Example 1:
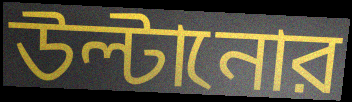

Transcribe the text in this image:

উল্টানোর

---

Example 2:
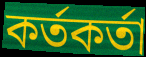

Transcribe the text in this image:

কর্তকর্তা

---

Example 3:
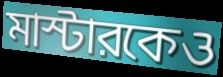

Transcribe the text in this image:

মাস্টারকেও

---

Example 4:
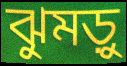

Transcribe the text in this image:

ঝুমড়ু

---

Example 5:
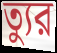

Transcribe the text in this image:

ত্যুর